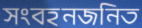
সংবহনজনিত